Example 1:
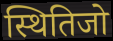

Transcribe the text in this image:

स्थितिजो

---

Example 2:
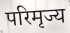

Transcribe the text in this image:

परिमृज्य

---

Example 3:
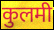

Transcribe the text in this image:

कुलमी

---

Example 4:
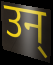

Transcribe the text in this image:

उन्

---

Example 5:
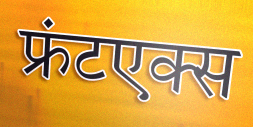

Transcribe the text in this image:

फ्रंटएक्स